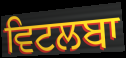
ਵਿਟਲਬਾ